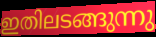
ഇതിലടങ്ങുന്നു